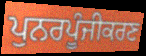
ਪੁਨਰਪੂੰਜੀਕਰਣ